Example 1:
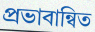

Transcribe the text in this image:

প্রভাবান্বিত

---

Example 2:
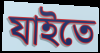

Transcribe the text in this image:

যাইতে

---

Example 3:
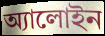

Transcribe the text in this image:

অ্যালোইন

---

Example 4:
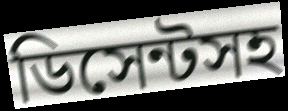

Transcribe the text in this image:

ডিসেন্টসহ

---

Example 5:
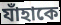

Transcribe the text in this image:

যাঁহাকে